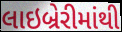
લાઇબ્રેરીમાંથી